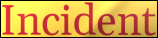
Incident